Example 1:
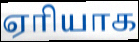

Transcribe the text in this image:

ஏரியாக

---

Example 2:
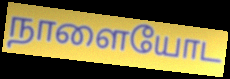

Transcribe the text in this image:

நாளையோட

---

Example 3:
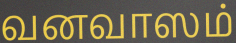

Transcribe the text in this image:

வனவாஸம்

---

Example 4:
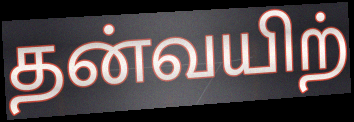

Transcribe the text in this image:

தன்வயிற்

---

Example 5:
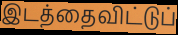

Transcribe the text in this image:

இடத்தைவிட்டுப்